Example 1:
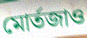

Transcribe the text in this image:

মোর্তজাও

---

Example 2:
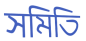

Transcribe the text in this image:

সমিতি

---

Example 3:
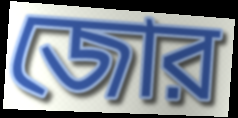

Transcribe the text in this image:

জোর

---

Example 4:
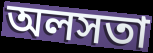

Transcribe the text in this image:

অলসতা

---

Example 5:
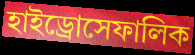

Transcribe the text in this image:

হাইড্রোসেফালিক